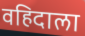
वहिदाला